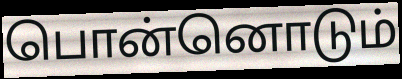
பொன்னொடும்